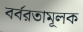
বর্বরতামূলক